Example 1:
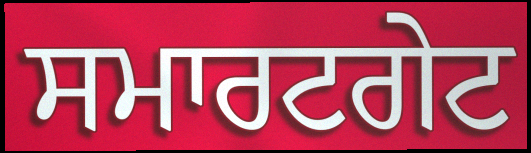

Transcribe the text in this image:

ਸਮਾਰਟਗੇਟ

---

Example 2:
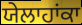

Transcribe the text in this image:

ਯੇਲਾਹਾਂਕਾ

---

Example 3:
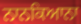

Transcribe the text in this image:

ਨਾਨਕਿਆਨਾ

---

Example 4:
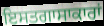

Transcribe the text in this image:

ਇਸਤਗਾਸਾਕਾਰਾਂ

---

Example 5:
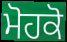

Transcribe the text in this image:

ਮੋਹਕੋ